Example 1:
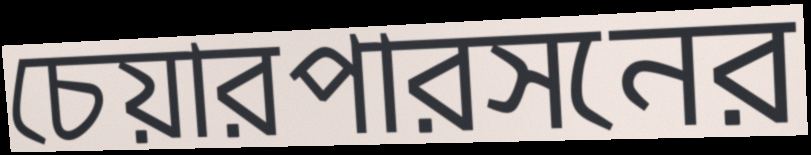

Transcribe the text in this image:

চেয়ারপারসনের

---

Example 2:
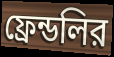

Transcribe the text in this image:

ফ্রেন্ডলির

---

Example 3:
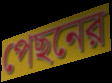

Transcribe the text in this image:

পেছনের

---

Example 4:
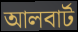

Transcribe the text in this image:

আলবার্ট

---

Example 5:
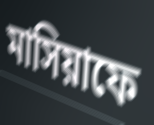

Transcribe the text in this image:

মাসিয়াফে